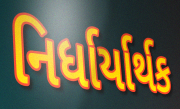
નિર્ધાર્યાર્થક